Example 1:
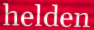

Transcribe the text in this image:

helden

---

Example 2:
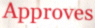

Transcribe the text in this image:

Approves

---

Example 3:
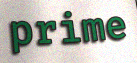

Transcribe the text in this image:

prime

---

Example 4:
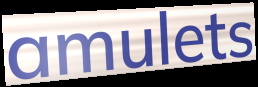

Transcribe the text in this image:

amulets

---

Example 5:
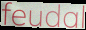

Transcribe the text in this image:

feudal